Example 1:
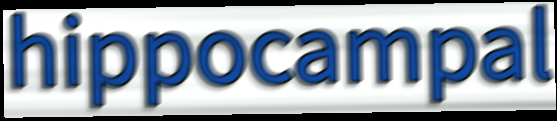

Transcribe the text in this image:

hippocampal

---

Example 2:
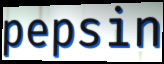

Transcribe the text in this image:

pepsin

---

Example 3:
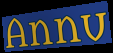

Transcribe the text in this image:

Annu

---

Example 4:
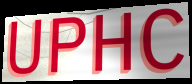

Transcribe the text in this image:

UPHC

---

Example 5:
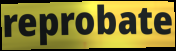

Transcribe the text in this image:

reprobate